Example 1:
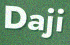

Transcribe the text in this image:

Daji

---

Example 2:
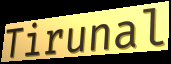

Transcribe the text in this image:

Tirunal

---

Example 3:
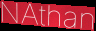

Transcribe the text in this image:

NAthan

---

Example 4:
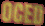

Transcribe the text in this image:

OCED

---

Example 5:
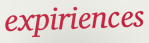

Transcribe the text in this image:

expiriences